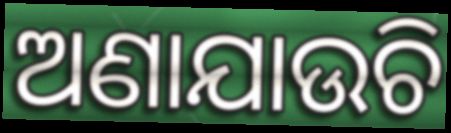
ଅଣାଯାଉଚି